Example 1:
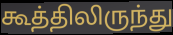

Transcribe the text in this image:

கூத்திலிருந்து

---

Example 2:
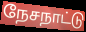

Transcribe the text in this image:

நேசநாட்டு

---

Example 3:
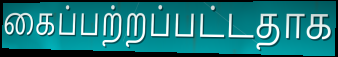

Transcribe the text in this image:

கைப்பற்றப்பட்டதாக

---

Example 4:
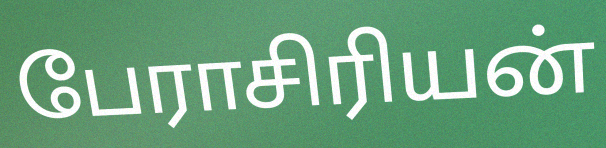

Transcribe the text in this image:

பேராசிரியன்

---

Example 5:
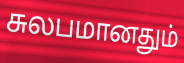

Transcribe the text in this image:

சுலபமானதும்